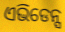
ଏଭିଡେନ୍ସ